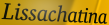
Lissachatina